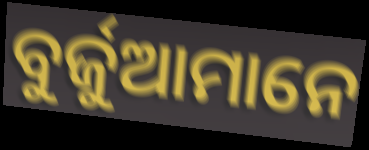
ବୁର୍ଜୁଆମାନେ